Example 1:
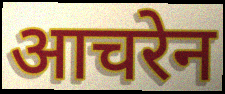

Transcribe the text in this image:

आचरेन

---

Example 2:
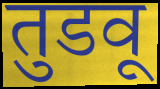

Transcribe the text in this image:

तुडवू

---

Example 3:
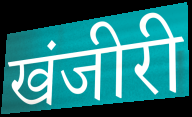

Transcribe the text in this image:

खंजीरी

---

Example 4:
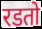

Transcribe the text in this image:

रडतो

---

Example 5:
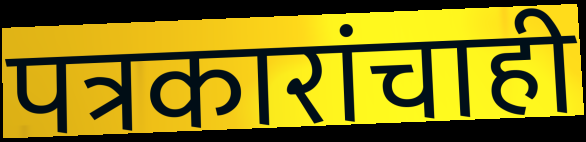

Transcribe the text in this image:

पत्रकारांचाही